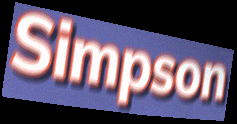
Simpson